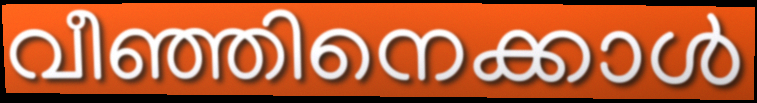
വീഞ്ഞിനെക്കാൾ